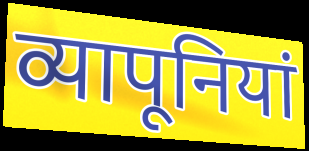
व्यापूनियां